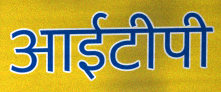
आईटीपी